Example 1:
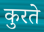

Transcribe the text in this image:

कुरते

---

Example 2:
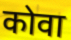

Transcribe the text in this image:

कोवा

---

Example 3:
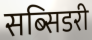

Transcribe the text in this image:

सब्सिडरी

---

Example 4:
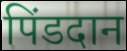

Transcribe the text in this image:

पिंडदान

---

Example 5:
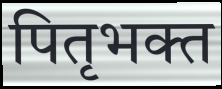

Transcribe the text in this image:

पितृभक्त